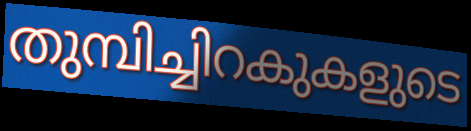
തുമ്പിച്ചിറകുകളുടെ